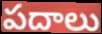
పదాలు